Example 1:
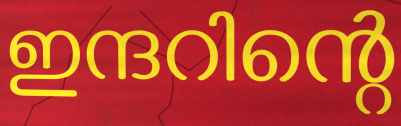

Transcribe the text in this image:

ഇന്ദറിന്റെ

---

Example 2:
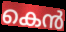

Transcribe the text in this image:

കെൻ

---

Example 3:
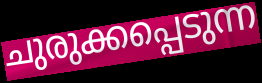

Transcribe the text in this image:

ചുരുക്കപ്പെടുന്ന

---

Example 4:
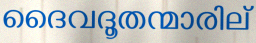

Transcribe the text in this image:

ദൈവദൂതന്മാരില്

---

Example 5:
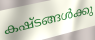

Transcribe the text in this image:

കഷ്ടങ്ങൾക്കു